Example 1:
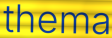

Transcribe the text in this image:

thema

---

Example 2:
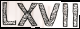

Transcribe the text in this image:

LXVII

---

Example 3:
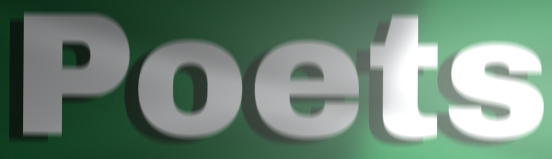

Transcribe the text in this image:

Poets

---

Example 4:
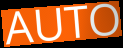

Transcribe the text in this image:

AUTO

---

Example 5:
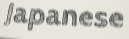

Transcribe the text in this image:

Japanese